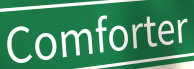
Comforter